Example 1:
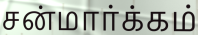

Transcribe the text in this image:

சன்மார்க்கம்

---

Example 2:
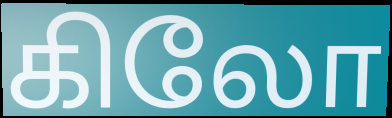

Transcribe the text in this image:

கிலோ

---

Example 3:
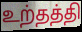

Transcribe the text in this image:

உற்தத்தி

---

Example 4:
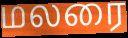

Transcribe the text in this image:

மலரை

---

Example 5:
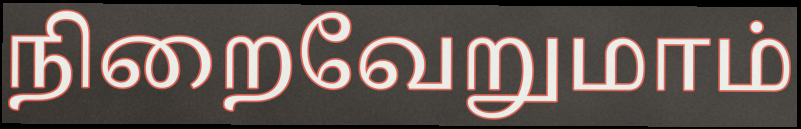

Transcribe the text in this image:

நிறைவேறுமாம்